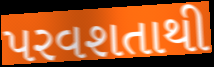
પરવશતાથી